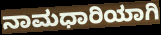
ನಾಮಧಾರಿಯಾಗಿ